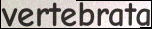
vertebrata